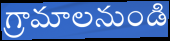
గ్రామాలనుండి